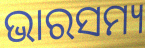
ଭାରସମ୍ୟ